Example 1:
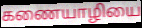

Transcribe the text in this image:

கணையாழியை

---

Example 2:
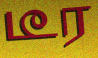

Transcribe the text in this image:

டீர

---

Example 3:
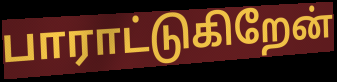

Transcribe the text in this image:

பாராட்டுகிறேன்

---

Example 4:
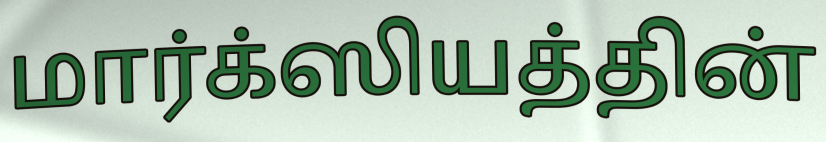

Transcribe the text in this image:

மார்க்ஸியத்தின்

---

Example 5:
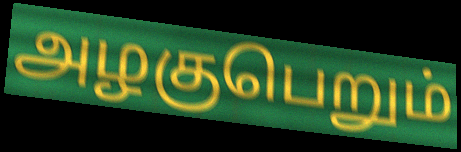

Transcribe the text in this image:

அழகுபெறும்